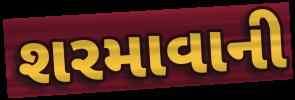
શરમાવાની